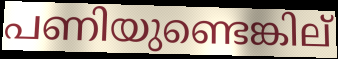
പണിയുണ്ടെങ്കില്